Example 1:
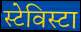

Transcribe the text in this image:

स्टेविस्टा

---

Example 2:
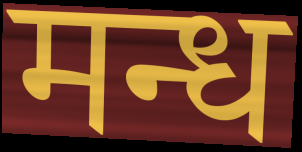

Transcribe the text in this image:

मन्ध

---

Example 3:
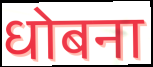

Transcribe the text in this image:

धोबना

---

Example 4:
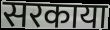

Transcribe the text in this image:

सरकाया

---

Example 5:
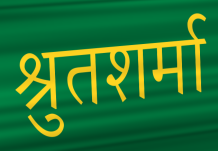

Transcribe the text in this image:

श्रुतशर्मा